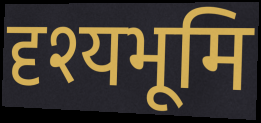
दृश्यभूमि